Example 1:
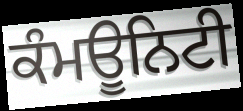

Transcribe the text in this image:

ਕੰਮਊਨਿਟੀ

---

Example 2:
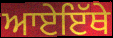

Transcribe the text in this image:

ਆਏਇੱਥੇ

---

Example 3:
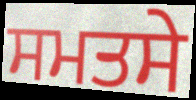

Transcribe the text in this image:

ਸਮਤਸੇ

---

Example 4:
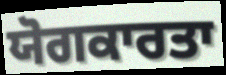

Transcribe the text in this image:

ਯੋਗਕਾਰਤਾ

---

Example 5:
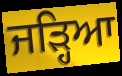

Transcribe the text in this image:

ਜੜ੍ਹਿਆ